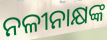
ନଳୀନାକ୍ଷଙ୍କ